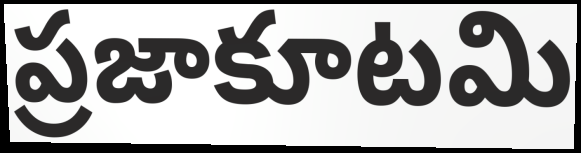
ప్రజాకూటమి